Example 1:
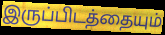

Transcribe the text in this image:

இருப்பிடத்தையும்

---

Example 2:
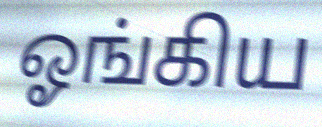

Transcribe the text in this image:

ஓங்கிய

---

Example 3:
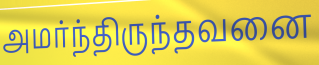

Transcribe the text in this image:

அமர்ந்திருந்தவனை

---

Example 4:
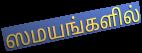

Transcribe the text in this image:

ஸமயங்களில்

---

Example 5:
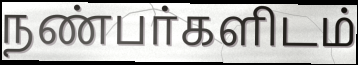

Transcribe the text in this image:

நண்பர்களிடம்